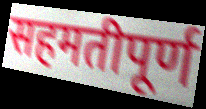
सहमतीपूर्ण